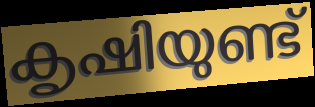
കൃഷിയുണ്ട്